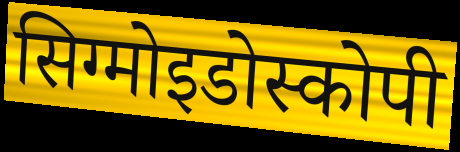
सिग्मोइडोस्कोपी